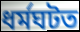
ধৰ্মঘটত